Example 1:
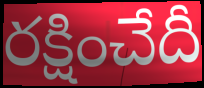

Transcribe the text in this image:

రక్షించేదీ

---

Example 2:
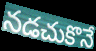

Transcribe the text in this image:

నడచుకొనే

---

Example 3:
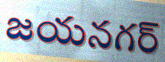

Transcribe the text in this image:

జయనగర్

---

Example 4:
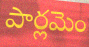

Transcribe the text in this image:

పార్లమెం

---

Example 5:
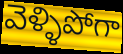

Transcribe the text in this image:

వెళ్ళిపోగా